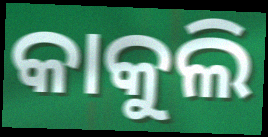
କାକୁଲି